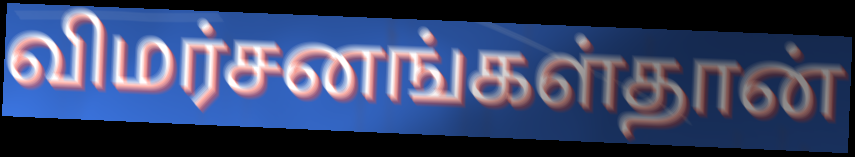
விமர்சனங்கள்தான்